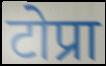
टोप्रा